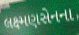
લક્ષ્મણસેનના